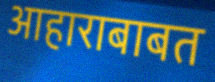
आहाराबाबत